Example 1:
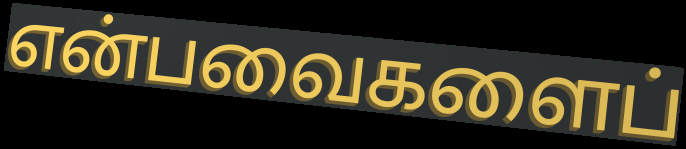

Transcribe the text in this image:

என்பவைகளைப்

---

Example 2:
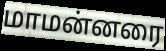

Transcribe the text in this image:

மாமன்னரை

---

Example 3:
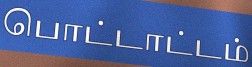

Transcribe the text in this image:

பொட்டாட்டம்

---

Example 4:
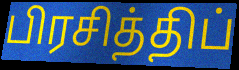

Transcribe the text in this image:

பிரசித்திப்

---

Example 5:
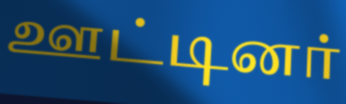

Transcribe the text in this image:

ஊட்டினர்